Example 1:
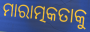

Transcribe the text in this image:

ମାରାତ୍ମକତାକୁ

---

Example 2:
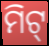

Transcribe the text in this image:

ମିଟ୍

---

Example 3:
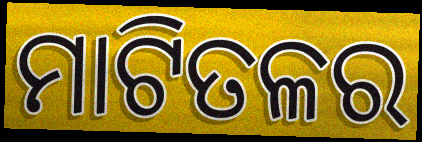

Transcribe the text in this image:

ମାଟିତଳର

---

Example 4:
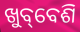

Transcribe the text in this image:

ଖୁବ୍‌ବେଶି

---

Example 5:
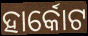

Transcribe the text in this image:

ହାର୍କୋଟ